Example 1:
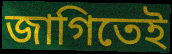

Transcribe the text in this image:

জাগিতেই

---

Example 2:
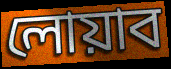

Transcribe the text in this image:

লোয়াব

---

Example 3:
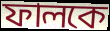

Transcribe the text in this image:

ফালকে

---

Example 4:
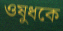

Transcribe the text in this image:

ওষুধকে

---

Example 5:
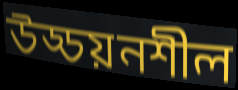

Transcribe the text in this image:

উড্ডয়নশীল